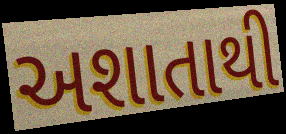
અશાતાથી